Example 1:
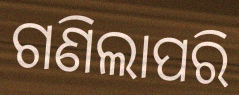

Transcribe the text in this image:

ଗଣିଲାପରି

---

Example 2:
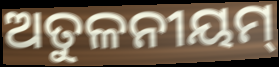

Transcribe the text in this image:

ଅତୁଳନୀୟମ୍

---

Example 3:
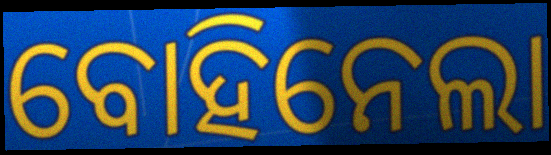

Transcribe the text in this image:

ବୋହିନେଲା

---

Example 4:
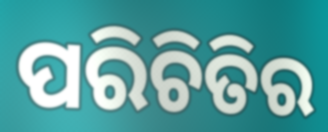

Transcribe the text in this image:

ପରିଚିତିର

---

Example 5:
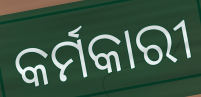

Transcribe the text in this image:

କର୍ମକାରୀ